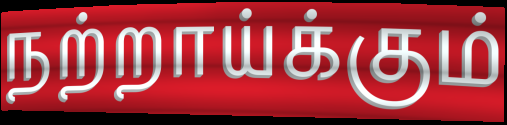
நற்றாய்க்கும்